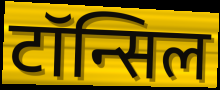
टॉन्सिल